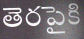
తెరపైకి